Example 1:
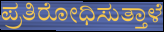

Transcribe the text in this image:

ಪ್ರತಿರೋಧಿಸುತ್ತಾಳೆ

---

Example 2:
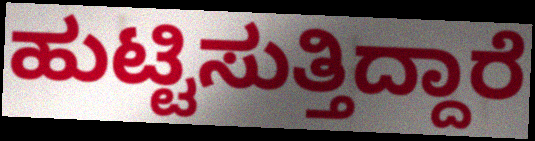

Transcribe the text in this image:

ಹುಟ್ಟಿಸುತ್ತಿದ್ದಾರೆ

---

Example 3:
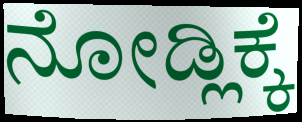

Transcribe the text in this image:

ನೋಡ್ಲಿಕ್ಕೆ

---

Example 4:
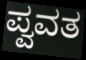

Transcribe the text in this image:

ಪ್ವವತ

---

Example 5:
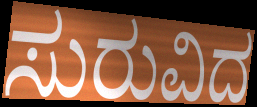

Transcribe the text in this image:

ಸುರುವಿದ